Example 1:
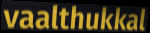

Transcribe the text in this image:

vaalthukkal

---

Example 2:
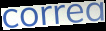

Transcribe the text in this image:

correa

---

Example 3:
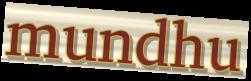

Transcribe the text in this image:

mundhu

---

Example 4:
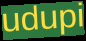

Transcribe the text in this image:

udupi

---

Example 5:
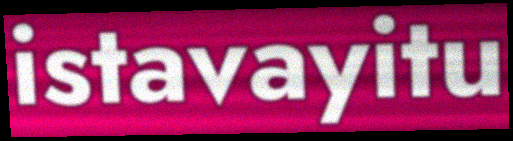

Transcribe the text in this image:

istavayitu